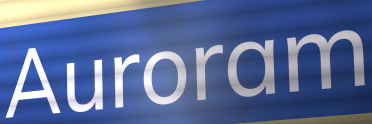
Auroram